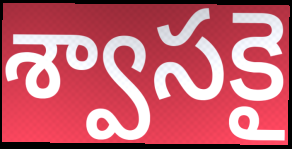
శ్వాసకై